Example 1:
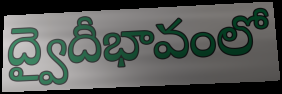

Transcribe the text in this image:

ద్వైదీభావంలో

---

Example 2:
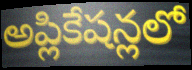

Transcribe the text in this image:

అప్లికేషన్లలో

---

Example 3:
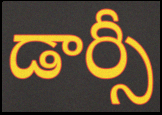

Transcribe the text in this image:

డార్సీ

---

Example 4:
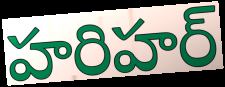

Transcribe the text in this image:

హరిహర్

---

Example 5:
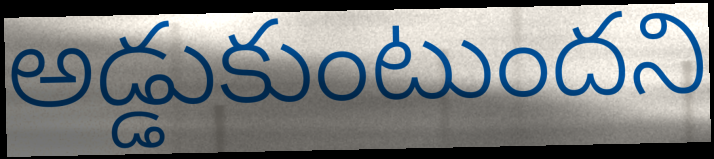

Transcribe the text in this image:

అడ్డుకుంటుందని